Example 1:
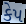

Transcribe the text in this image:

કેપ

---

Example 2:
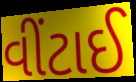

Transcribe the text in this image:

વીંટાઈ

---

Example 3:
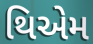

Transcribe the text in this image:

થિએમ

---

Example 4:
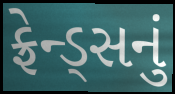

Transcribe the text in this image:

ફ્રેન્ડ્સનું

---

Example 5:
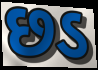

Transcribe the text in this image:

છડ